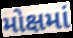
મોક્ષમાં